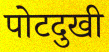
पोटदुखी